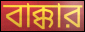
বাক্কার